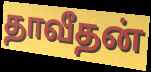
தாவீதன்